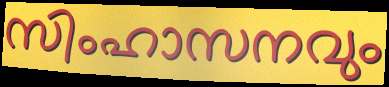
സിംഹാസനവും